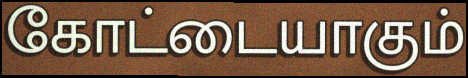
கோட்டையாகும்